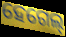
ହେଗେଲ୍